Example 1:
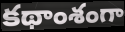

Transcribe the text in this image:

కథాంశంగా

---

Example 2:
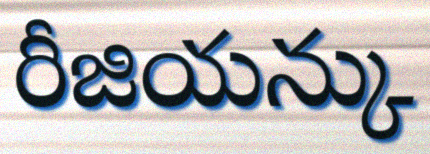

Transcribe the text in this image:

రీజియన్కు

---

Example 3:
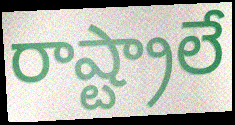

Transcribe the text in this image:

రాష్ట్రాలే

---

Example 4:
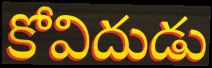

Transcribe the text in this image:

కోవిదుడు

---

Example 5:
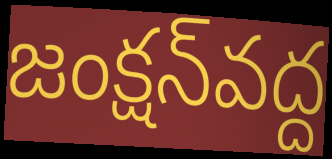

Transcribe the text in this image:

జంక్షన్‌వద్ద